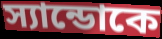
স্যান্ডোকে